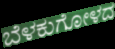
ಬೆಳಕುಗೋಳದ